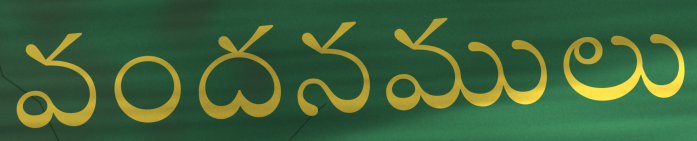
వందనములు